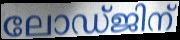
ലോഡ്ജിന്